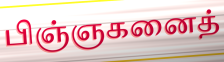
பிஞ்ஞகனைத்